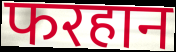
फरहान